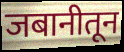
जबानीतून